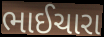
ભાઈચારા